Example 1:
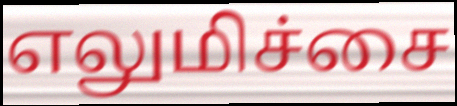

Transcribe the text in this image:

எலுமிச்சை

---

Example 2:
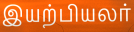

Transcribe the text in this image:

இயற்பியலர்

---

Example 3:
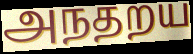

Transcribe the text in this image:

அநதறய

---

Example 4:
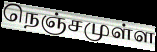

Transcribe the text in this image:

நெஞ்சமுள்ள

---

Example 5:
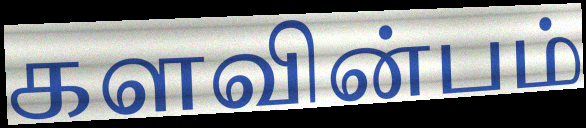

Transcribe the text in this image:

களவின்பம்